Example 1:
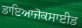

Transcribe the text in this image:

ਡਾਇਆਜੋਕਸਾਈਡ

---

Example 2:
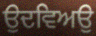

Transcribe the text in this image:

ਉਦਵਿਅਉ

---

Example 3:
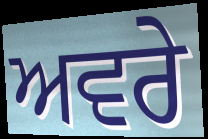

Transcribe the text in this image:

ਅਵਰੇ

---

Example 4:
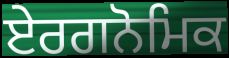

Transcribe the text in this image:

ਏਰਗਨੋਮਿਕ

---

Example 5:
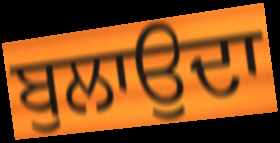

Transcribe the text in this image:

ਬੁਲਾਉਦਾ